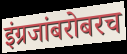
इंग्रजांबरोबरच